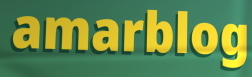
amarblog